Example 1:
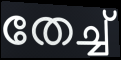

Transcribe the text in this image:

തേച്ച്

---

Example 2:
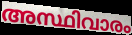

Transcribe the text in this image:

അസ്ഥിവാരം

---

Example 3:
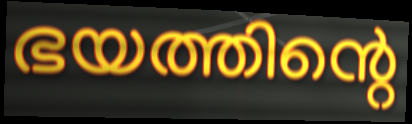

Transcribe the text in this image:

ഭയത്തിന്റെ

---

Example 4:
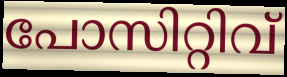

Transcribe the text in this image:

പോസിറ്റിവ്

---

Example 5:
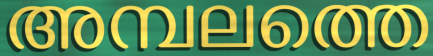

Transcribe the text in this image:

അമ്പലത്തെ